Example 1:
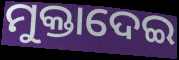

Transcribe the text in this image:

ମୁକ୍ତାଦେଇ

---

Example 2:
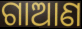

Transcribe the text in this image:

ଗାଆଣ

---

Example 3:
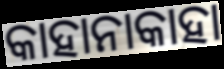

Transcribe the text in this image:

କାହାନାକାହା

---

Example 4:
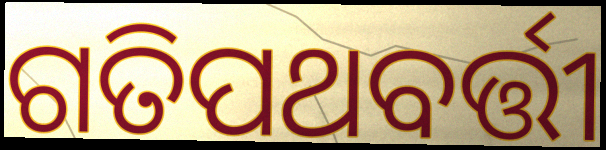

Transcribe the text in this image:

ଗତିପଥବର୍ତ୍ତୀ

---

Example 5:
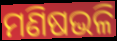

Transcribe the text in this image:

ମଣିଷଭଳି